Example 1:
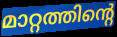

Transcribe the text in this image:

മാറ്റത്തിന്റെ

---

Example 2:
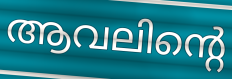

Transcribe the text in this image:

ആവലിന്റെ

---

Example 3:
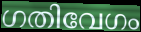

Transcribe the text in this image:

ഗതിവേഗം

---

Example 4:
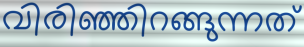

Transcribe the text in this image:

വിരിഞ്ഞിറങ്ങുന്നത്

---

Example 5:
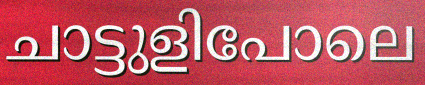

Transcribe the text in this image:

ചാട്ടുളിപോലെ